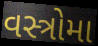
વસ્ત્રોમા